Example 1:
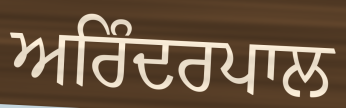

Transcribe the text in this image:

ਅਰਿੰਦਰਪਾਲ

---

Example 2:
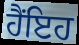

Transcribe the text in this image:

ਹੈਂਇਹ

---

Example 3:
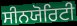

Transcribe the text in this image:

ਸੀਨਯੋਰਿਟੀ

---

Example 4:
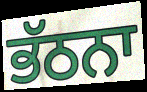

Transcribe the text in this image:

ਭੱਠਨਾ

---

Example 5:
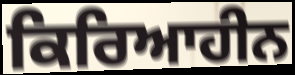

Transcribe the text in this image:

ਕਿਰਿਆਹੀਨ